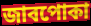
জাবপোকা